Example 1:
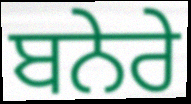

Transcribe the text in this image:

ਬਨੇਰੇ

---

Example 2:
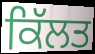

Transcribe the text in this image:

ਕਿੱਲਤ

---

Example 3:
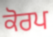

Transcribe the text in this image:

ਕੋਰਪ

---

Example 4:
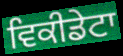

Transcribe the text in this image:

ਵਿਕੀਡੇਟਾ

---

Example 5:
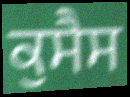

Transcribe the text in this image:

ਕੁਸੈਸ